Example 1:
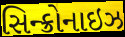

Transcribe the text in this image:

સિન્ક્રોનાઇઝ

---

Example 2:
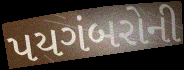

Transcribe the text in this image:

પયગંબરોની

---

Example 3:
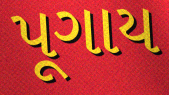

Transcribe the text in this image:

પૂગાય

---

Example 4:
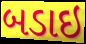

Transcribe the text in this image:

બડાઇ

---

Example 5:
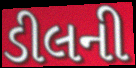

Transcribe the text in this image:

ડીલની